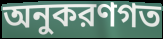
অনুকরণগত